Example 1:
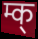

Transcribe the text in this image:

म्क्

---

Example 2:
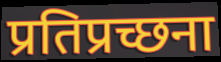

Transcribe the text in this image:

प्रतिप्रच्छना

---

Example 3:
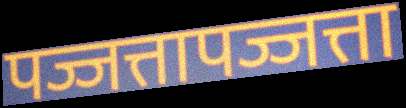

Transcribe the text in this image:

पज्जत्तापज्जत्ता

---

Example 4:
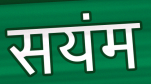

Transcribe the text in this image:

सयंम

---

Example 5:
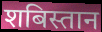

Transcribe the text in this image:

शबिस्तान